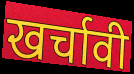
खर्चावी